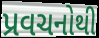
પ્રવચનોથી